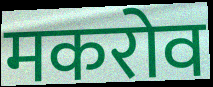
मकरोव